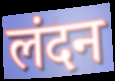
लंदन